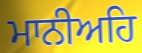
ਮਾਨੀਅਹਿ